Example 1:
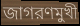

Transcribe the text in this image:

জাগরণমুখী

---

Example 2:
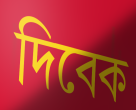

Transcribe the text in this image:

দিবেক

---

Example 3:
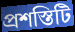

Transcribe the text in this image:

প্রশস্তিটি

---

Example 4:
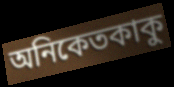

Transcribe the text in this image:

অনিকেতকাকু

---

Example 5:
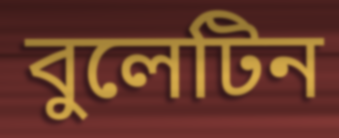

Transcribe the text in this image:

বুলেটিন